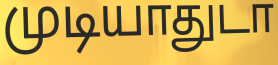
முடியாதுடா